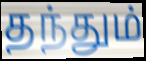
தந்தும்